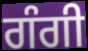
ਗੰਗੀ